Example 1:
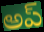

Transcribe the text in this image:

అప్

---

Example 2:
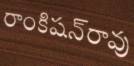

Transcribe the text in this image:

రాంకిషన్‌రావు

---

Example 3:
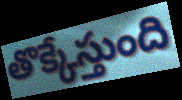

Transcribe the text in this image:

తొక్కేస్తుంది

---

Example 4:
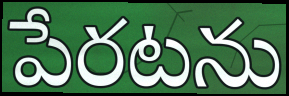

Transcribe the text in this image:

పేరటను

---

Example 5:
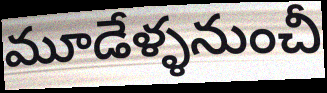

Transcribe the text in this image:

మూడేళ్ళనుంచీ